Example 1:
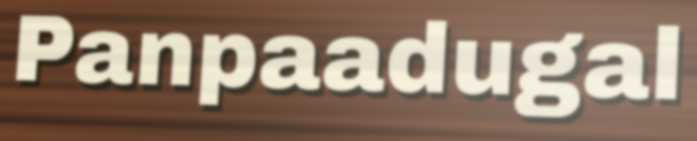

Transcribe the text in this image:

Panpaadugal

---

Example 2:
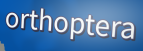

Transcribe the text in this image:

orthoptera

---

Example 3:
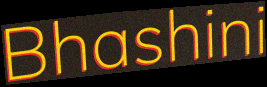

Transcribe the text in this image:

Bhashini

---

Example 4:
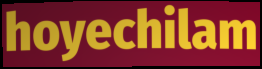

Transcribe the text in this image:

hoyechilam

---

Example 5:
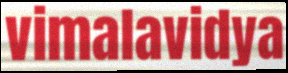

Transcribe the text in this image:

vimalavidya